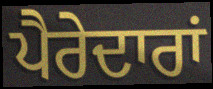
ਪੈਰੇਦਾਰਾਂ